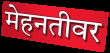
मेहनतीवर